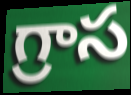
గ్రాస